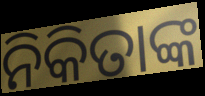
ନିକିତାଙ୍କ